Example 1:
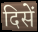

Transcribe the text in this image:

दिसें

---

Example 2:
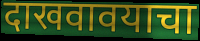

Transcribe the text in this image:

दाखवावयाचा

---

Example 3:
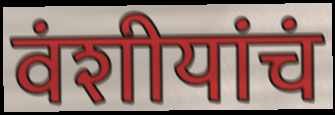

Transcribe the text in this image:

वंशीयांचं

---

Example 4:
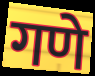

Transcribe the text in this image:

गणे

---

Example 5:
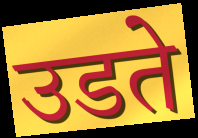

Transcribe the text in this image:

उडते